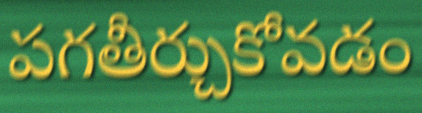
పగతీర్చుకోవడం